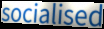
socialised